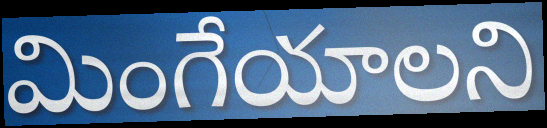
మింగేయాలని